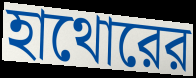
হাথোরের